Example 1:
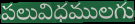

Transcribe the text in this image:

పలువిధములగు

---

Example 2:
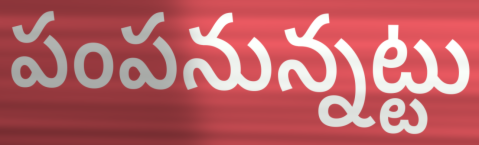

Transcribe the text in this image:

పంపనున్నట్టు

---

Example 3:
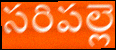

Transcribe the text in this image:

సరిపల్లె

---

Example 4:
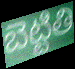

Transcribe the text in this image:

బెట్టితి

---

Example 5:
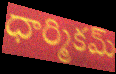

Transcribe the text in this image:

ధార్మికమ్